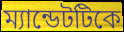
ম্যান্ডেটটিকে